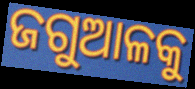
ଜଗୁଆଳକୁ